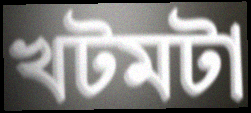
খটমটা